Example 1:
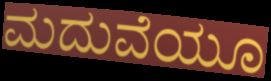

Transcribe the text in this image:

ಮದುವೆಯೂ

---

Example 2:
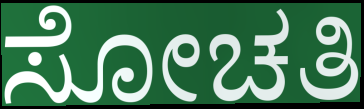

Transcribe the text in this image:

ಸೋಚತಿ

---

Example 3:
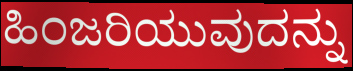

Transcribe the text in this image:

ಹಿಂಜರಿಯುವುದನ್ನು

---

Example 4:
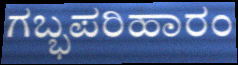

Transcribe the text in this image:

ಗಬ್ಭಪರಿಹಾರಂ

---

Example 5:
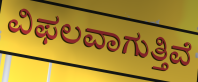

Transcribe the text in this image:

ವಿಫಲವಾಗುತ್ತಿವೆ